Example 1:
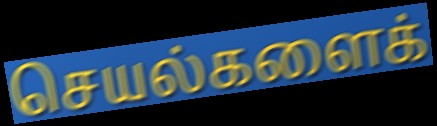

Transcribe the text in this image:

செயல்களைக்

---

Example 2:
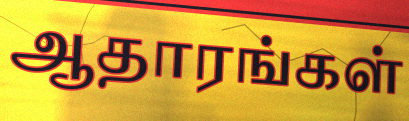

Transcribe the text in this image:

ஆதாரங்கள்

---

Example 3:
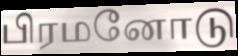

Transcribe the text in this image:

பிரமனோடு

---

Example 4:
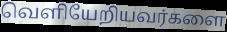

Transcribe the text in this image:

வெளியேறியவர்களை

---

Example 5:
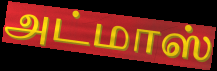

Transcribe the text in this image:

அட்மாஸ்